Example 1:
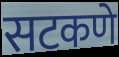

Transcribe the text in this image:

सटकणे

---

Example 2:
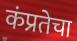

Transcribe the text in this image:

कंप्रतेचा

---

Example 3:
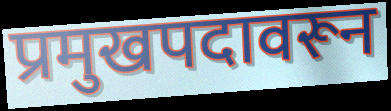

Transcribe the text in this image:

प्रमुखपदावरून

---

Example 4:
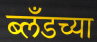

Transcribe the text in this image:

ब्लँडच्या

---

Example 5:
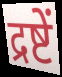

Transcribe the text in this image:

द्रष्टें